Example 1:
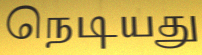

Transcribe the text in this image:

நெடியது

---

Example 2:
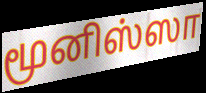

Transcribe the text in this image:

மூனிஸ்ஸா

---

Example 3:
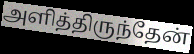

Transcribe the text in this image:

அளித்திருந்தேன்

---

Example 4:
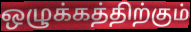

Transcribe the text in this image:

ஒழுக்கத்திற்கும்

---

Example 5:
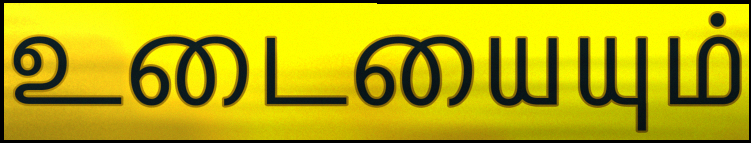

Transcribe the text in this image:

உடையையும்